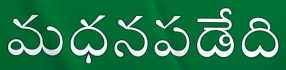
మధనపడేది